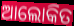
ଆଲୋକିତ